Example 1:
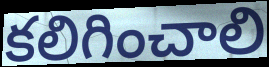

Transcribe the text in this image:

కలిగించాలి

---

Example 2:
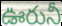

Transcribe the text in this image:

ఊరునీ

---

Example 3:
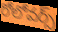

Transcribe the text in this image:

రోలోవర్స్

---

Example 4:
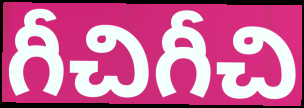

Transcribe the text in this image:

గీచిగీచి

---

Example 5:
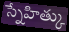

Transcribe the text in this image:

స్నేహిత్కు